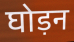
घोड़न